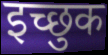
इच्‍छुक